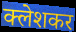
क्लेशकर